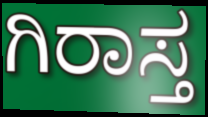
ಗಿರಾಸ್ತ